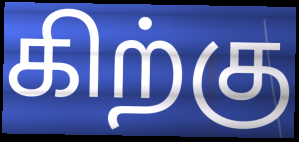
கிற்கு